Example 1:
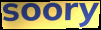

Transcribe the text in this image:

soory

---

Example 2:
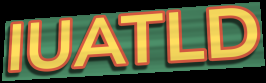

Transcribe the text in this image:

IUATLD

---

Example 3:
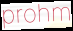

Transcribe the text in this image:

prohm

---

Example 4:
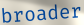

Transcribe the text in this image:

broader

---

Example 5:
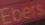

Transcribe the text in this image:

Ebers